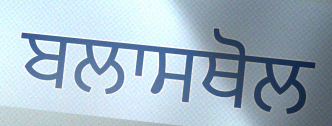
ਬਲਾਸਥੋਲ